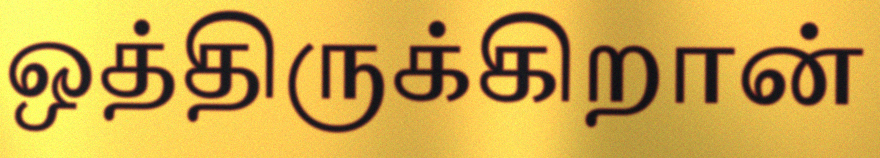
ஒத்திருக்கிறான்